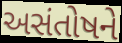
અસંતોષને